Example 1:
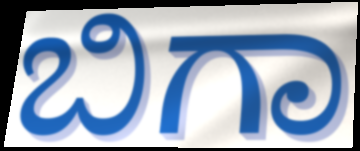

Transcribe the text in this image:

ಬಿಗಾ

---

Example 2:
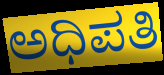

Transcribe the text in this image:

ಅಧಿಪತಿ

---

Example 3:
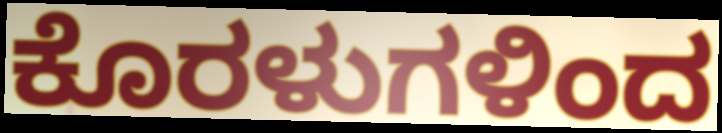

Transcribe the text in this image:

ಕೊರಳುಗಳಿಂದ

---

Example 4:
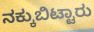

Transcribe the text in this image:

ನಕ್ಕುಬಿಟ್ಟಾರು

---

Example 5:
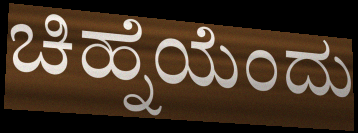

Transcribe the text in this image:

ಚಿಹ್ನೆಯೆಂದು